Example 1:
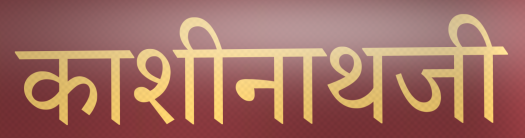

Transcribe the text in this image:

काशीनाथजी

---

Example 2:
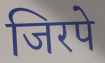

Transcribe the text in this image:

जिरपे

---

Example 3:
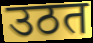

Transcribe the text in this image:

उठत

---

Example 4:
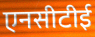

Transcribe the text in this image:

एनसीटीई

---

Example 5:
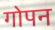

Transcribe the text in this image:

गोपन